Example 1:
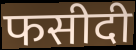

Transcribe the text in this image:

फसीदी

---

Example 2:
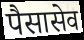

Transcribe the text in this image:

पैसासेव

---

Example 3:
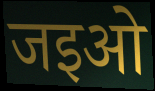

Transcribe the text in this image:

जइओ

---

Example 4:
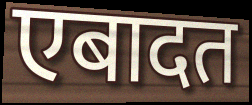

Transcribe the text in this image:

एबादत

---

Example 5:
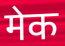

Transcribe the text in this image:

मेक